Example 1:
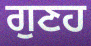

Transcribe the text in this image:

ਗੁਣਹ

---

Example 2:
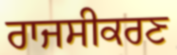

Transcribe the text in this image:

ਰਾਜਸੀਕਰਣ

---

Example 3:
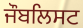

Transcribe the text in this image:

ਜੌਬਲਿਸਟ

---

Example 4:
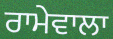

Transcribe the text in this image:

ਰਾਮੇਵਾਲਾ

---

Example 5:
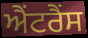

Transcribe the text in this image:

ਐਂਟਰੈਂਸ